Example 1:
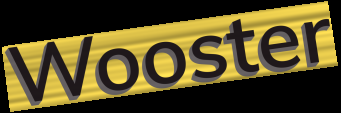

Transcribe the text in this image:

Wooster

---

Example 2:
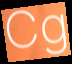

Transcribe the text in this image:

Cg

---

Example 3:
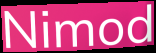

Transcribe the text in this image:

Nimod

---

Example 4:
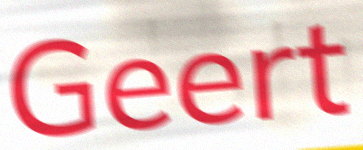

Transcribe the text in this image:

Geert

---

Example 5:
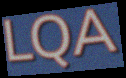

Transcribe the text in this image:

LQA